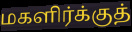
மகளிர்க்குத்